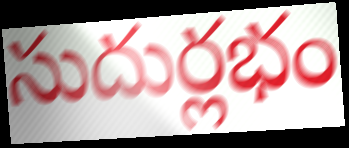
సుదుర్లభం